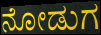
ನೋಡುಗ